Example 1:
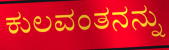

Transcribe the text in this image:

ಕುಲವಂತನನ್ನು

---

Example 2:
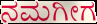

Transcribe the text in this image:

ನಮಗೀಗ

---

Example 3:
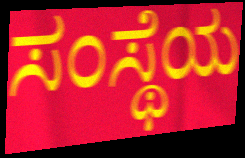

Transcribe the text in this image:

ಸಂಸ್ಥೆಯ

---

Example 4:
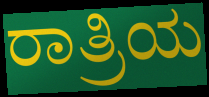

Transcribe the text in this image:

ರಾತ್ರಿಯ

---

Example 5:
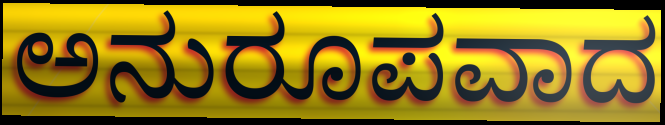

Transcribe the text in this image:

ಅನುರೂಪವಾದ